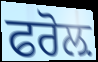
ਫਰੋਲ਼